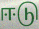
ஈடு